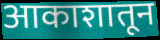
आकाशातून